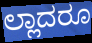
ಲ್ಲಾದರೂ